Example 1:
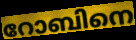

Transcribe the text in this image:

റോബിനെ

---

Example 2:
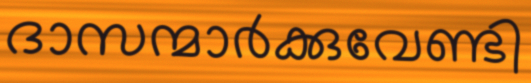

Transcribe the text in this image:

ദാസന്മാർക്കുവേണ്ടി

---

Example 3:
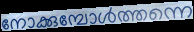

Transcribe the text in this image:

നോക്കുമ്പോൾത്തന്നെ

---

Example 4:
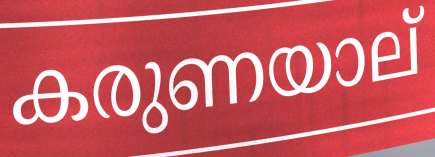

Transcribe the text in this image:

കരുണയാല്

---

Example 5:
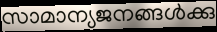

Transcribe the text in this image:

സാമാന്യജനങ്ങൾക്കു